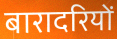
बारादरियों